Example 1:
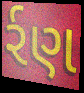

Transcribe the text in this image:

ર્રણ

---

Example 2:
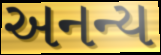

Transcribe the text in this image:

અનન્ય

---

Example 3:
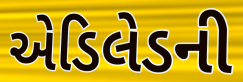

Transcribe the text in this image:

એડિલેડની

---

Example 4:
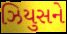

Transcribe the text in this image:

ઝિયુસને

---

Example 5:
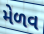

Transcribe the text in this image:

મેળવ